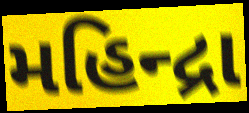
મહિન્દ્રા